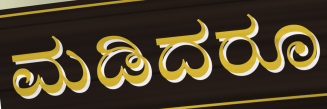
ಮಡಿದರೂ